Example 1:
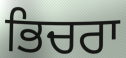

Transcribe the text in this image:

ਭਿਚਰਾ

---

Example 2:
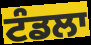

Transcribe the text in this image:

ਟੰਡਲਾ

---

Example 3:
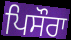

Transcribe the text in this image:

ਪਿਸੌਰਾ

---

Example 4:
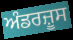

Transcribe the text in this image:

ਅੰਡਰਜ਼ੂਸ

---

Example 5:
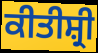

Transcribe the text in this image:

ਕੀਤੀਸ਼੍ਰੀ